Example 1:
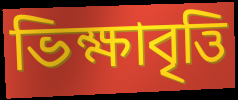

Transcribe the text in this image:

ভিক্ষাবৃত্তি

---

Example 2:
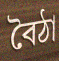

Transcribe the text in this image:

বৈঠা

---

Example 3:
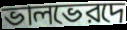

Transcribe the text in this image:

ভালভেরদে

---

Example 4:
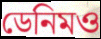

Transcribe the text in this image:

ডেনিমও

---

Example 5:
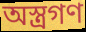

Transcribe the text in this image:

অস্ত্রগণ